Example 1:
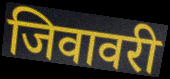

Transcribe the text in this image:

जिवावरी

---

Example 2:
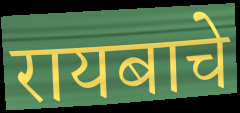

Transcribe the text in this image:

रायबाचे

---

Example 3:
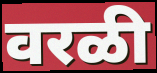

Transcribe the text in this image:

वरळी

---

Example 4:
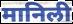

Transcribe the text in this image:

मानिली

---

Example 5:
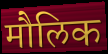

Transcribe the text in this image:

मौलिक